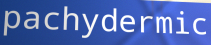
pachydermic